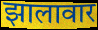
झालावार